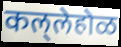
कल्लेहोळ